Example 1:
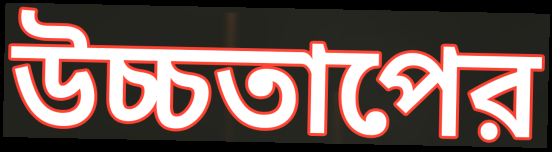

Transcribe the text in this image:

উচ্চতাপের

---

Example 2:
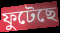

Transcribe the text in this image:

ফুটেছে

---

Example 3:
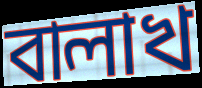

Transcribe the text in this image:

বালাখ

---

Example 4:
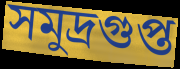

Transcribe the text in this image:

সমুদ্রগুপ্ত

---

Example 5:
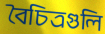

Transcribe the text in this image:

বৈচিত্রগুলি